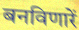
बनविणारें